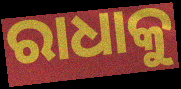
ରାଧାକୁ